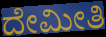
ದೇಮೀತಿ